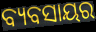
ବ୍ୟବସାୟର